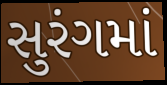
સુરંગમાં